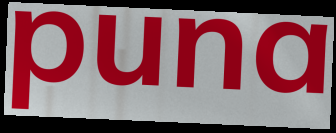
puna